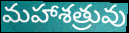
మహాశత్రువు